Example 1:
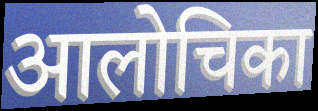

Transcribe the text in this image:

आलोचिका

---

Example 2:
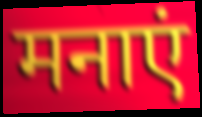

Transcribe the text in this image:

मनाएं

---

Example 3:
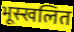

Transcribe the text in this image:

भूस्खलित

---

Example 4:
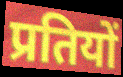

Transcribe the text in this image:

प्रतियों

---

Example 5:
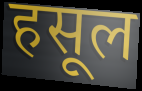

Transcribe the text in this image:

हसूल